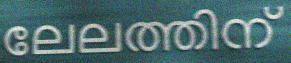
ലേലത്തിന്